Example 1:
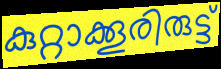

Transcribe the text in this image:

കുറ്റാക്കൂരിരുട്ട്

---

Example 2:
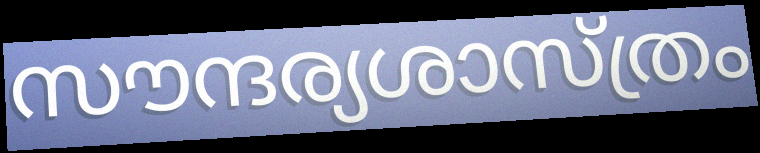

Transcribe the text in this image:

സൗന്ദര്യശാസ്ത്രം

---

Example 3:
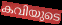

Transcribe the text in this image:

കവിയുടെ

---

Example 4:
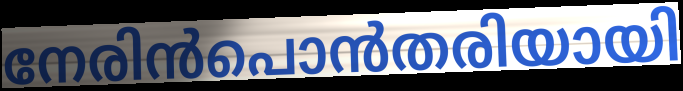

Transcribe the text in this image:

നേരിൻപൊൻതരിയായി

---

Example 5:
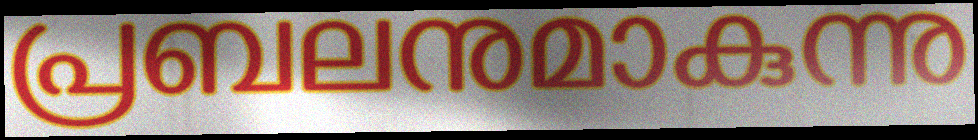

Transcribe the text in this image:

പ്രബലനുമാകുന്നു